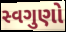
સ્વગુણો